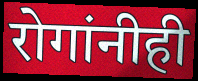
रोगांनीही